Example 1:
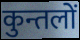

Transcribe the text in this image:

कुन्तलों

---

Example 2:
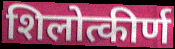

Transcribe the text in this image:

शिलोत्कीर्ण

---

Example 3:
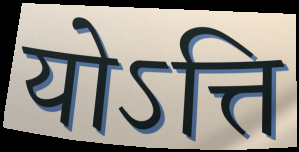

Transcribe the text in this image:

योऽत्ति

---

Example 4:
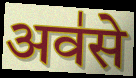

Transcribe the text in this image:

अव॑से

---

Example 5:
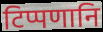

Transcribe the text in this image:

टिप्पणानि